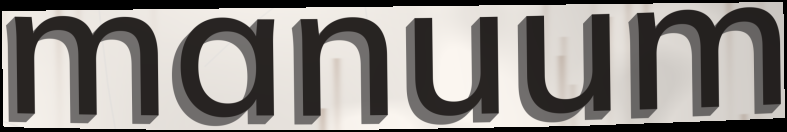
manuum